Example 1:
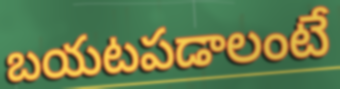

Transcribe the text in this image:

బయటపడాలంటే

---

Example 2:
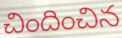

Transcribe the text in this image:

చిందించిన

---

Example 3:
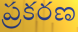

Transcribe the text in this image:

ప్రకరణ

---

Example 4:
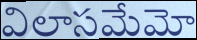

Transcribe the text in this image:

విలాసమేమో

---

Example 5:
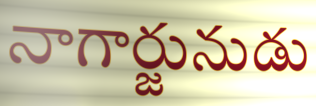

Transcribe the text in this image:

నాగార్జునుడు